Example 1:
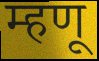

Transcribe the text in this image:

म्हणू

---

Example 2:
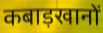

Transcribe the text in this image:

कबाड़खानों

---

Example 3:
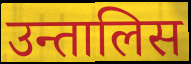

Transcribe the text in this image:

उन्तालिस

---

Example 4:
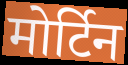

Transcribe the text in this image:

मोर्टिन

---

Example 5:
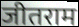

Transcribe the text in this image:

जीतराम